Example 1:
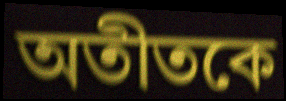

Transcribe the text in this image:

অতীতকে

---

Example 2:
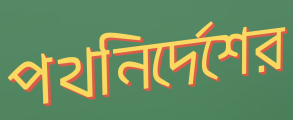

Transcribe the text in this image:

পথনির্দেশের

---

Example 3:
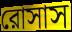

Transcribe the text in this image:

রোসাস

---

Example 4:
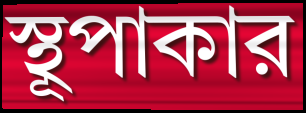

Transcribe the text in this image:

স্থূপাকার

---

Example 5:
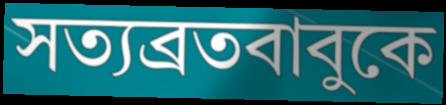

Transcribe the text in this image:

সত্যব্রতবাবুকে